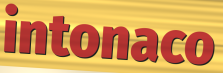
intonaco